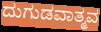
ದುಗುಡವಾತ್ಮವ